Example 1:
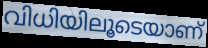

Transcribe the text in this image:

വിധിയിലൂടെയാണ്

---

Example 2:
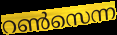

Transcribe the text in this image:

റൺസെന്ന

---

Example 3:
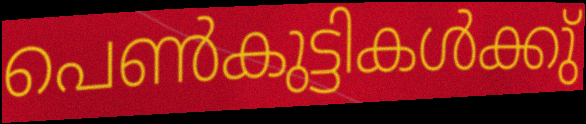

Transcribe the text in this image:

പെൺകുട്ടികൾക്കു്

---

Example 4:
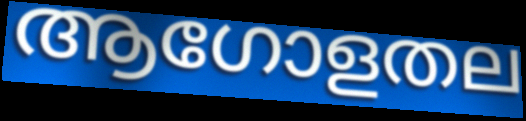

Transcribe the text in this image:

ആഗോളതല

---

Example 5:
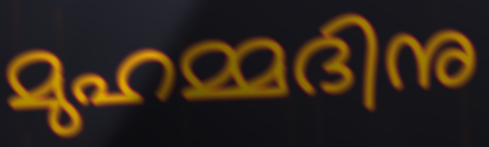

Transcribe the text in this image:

മുഹമ്മദിനു